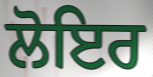
ਲੋਇਰ